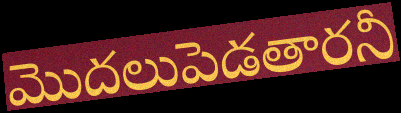
మొదలుపెడతారనీ